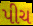
પીચ